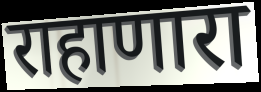
राहाणारा